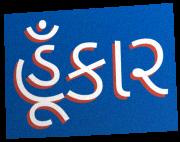
હૂઁકાર